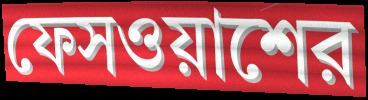
ফেসওয়াশের